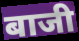
बाजी